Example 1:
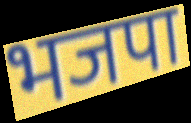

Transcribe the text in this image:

भजपा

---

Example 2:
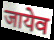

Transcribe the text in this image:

जायेव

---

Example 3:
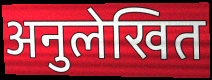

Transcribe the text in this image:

अनुलेखित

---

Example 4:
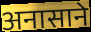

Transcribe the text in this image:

अनासाने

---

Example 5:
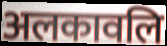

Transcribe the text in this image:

अलकावलि